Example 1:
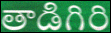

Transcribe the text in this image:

తాడిగిరి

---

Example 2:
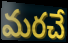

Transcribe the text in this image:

మరచే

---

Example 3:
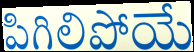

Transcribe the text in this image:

పిగిలిపోయే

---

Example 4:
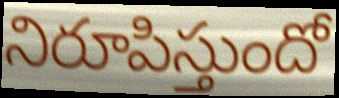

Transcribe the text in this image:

నిరూపిస్తుందో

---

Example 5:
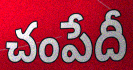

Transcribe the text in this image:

చంపేదీ